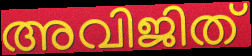
അവിജിത്